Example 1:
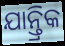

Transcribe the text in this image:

ଯାନ୍ତ୍ରିକ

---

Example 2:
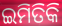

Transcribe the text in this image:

ଇମିତିକି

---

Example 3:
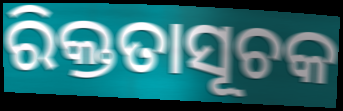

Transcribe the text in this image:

ରିକ୍ତତାସୂଚକ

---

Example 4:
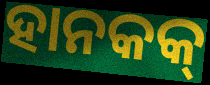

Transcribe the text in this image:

ହାନକକ୍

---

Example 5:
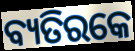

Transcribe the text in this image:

ବ୍ୟତିରକେ